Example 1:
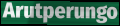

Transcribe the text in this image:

Arutperungo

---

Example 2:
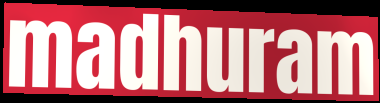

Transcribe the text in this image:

madhuram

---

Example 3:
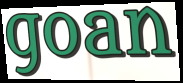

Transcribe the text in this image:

goan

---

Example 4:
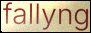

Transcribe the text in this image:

fallyng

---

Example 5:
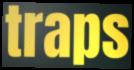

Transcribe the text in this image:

traps